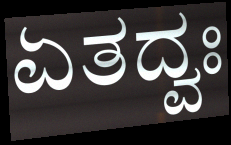
ಏತದ್ವಃ